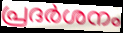
പ്രദർശനം